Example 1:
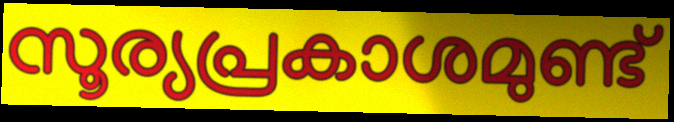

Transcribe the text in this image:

സൂര്യപ്രകാശമുണ്ട്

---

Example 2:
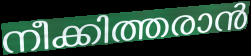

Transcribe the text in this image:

നീക്കിത്തരാൻ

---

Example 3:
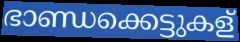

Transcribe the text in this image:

ഭാണ്ഡക്കെട്ടുകള്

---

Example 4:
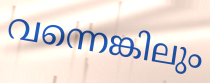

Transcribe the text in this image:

വന്നെങ്കിലും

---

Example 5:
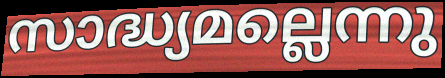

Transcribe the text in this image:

സാദ്ധ്യമല്ലെന്നു